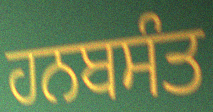
ਹਨਬਸੰਤ